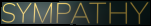
SYMPATHY